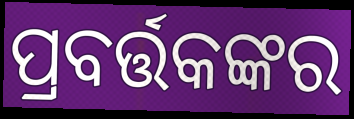
ପ୍ରବର୍ତ୍ତକଙ୍କର